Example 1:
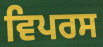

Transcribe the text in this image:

ਵਿਪਰਸ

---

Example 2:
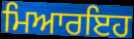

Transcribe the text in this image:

ਮਿਆਰਇਹ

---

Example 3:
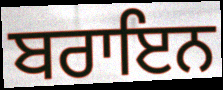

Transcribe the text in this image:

ਬਰਾਇਨ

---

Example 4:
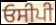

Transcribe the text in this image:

ਓਸੀਪੀ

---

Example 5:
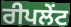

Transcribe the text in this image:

ਰੀਪਲੇਂਟ